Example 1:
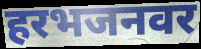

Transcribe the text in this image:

हरभजनवर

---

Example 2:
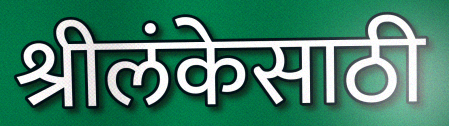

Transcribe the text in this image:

श्रीलंकेसाठी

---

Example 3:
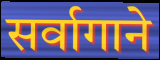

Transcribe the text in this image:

सर्वागाने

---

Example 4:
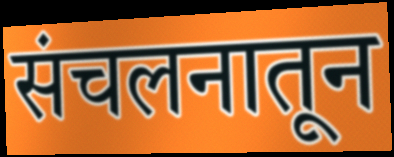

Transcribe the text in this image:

संचलनातून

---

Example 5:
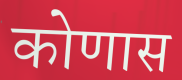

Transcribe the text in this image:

कोणास